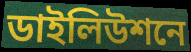
ডাইলিউশনে